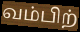
வம்பிற்